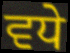
ਵਧੇ